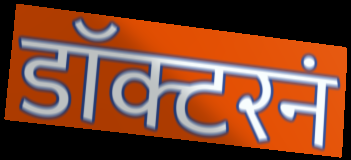
डॉक्टरनं